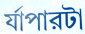
র্যাপারটা